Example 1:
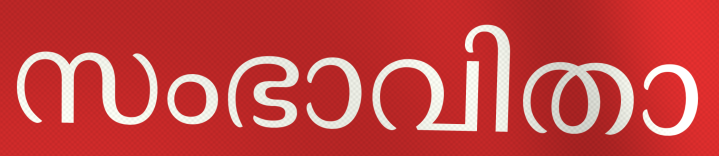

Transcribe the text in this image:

സംഭാവിതാ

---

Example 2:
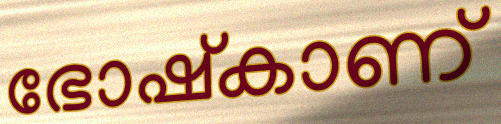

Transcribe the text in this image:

ഭോഷ്കാണ്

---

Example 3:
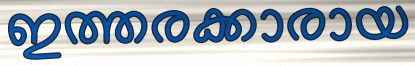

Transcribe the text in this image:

ഇത്തരക്കാരായ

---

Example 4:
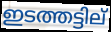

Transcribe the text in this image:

ഇടത്തട്ടില്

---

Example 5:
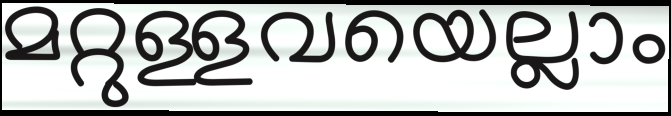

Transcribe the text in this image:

മറ്റുള്ളവയെല്ലാം